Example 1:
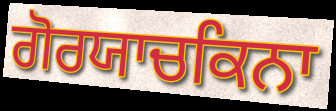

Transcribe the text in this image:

ਗੋਰਯਾਚਕਿਨਾ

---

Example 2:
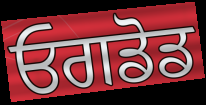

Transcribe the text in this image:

ਓਗਡੋਡ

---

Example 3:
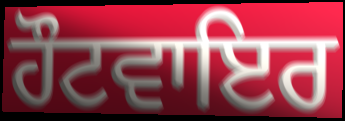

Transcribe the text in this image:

ਹੌਟਵਾਇਰ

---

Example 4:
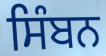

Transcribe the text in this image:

ਸਿੰਬਨ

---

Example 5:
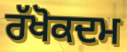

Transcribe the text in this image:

ਰੱਖੋਕਦਮ